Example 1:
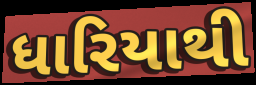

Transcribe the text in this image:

ધારિયાથી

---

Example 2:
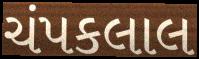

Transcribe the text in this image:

ચંપકલાલ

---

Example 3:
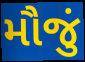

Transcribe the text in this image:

મૌજું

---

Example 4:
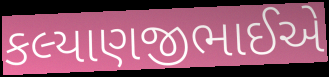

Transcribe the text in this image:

કલ્યાણજીભાઈએ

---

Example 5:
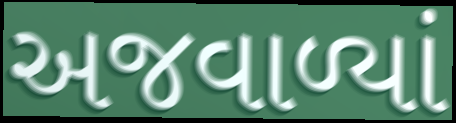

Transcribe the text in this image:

અજવાળ્યાં